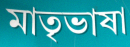
মাতৃভাষা